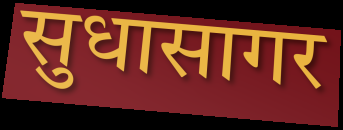
सुधासागर